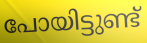
പോയിട്ടുണ്ട്